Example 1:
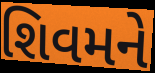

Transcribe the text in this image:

શિવમને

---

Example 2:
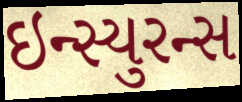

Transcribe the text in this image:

ઇન્સ્યુરન્સ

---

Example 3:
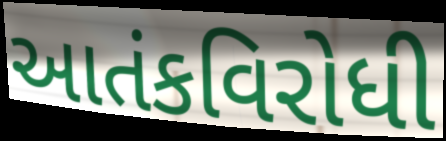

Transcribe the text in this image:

આતંકવિરોધી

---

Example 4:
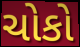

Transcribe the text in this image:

ચોકો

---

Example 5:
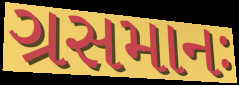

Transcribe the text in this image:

ગ્રસમાનઃ